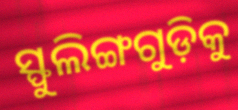
ସ୍ଫୁଲିଙ୍ଗଗୁଡ଼ିକୁ